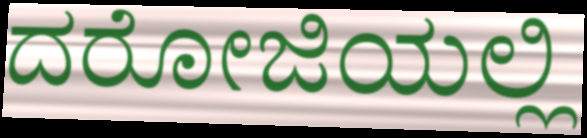
ದರೋಜಿಯಲ್ಲಿ